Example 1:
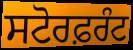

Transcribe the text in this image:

ਸਟੋਰਫ਼ਰੰਟ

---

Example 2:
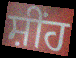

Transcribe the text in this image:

ਸ਼ੀਂਹ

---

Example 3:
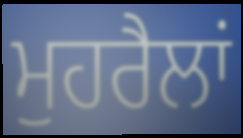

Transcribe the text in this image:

ਮੁਹਰੈਲਾਂ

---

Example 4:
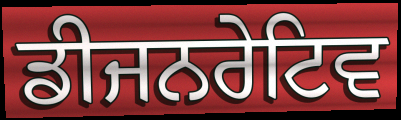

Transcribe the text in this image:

ਡੀਜਨਰੇਟਿਵ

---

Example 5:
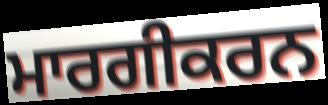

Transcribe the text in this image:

ਮਾਰਗੀਕਰਨ